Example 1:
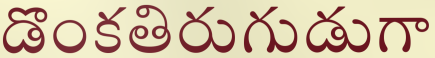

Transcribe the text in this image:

డొంకతిరుగుడుగా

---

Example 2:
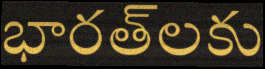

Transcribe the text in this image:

భారత్‌లకు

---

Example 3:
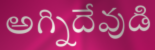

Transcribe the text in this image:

అగ్నిదేవుడి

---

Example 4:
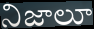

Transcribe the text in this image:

నిజాలూ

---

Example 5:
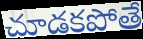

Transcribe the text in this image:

చూడకపోతే